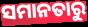
ସମାନତାରୁ